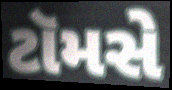
ટૉમસે